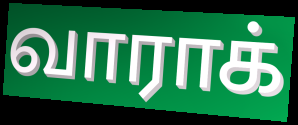
வாராக்